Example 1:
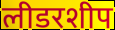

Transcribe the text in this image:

लीडरशीप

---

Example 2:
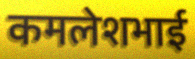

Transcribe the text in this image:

कमलेशभाई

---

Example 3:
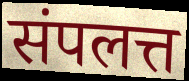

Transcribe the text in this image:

संपलत्त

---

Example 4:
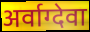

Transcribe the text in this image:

अर्वाग्देवा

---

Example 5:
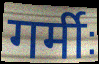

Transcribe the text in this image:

गर्मीः